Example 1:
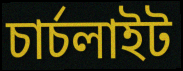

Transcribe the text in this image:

চাৰ্চলাইট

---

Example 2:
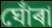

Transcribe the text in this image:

ঘোঁৰা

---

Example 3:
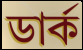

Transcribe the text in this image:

ডাৰ্ক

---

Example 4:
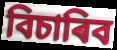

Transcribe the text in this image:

বিচাৰিব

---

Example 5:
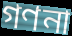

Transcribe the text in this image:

গণনা